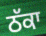
ਠੱਕਾ